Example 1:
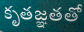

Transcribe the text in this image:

కృతజ్ఞతతో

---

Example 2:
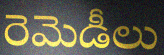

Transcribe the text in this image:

రెమెడీలు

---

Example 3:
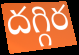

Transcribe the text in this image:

దగ్గిర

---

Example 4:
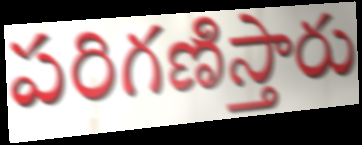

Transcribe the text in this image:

పరిగణిస్తారు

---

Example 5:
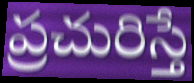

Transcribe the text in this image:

ప్రచురిస్తే